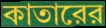
কাতারের